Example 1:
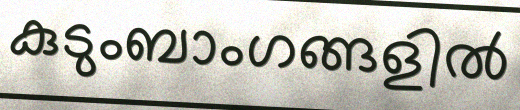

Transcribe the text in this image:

കുടുംബാംഗങ്ങളിൽ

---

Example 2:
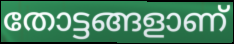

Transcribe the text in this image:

തോട്ടങ്ങളാണ്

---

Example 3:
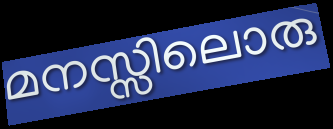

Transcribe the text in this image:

മനസ്സിലൊരു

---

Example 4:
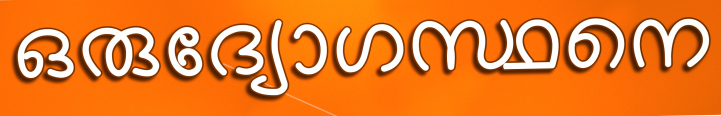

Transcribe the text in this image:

ഒരുദ്യോഗസ്ഥനെ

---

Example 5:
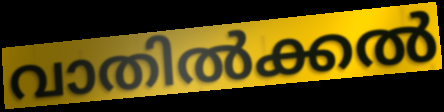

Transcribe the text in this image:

വാതിൽക്കൽ